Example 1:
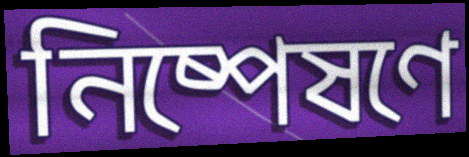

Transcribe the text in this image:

নিষ্পেষণে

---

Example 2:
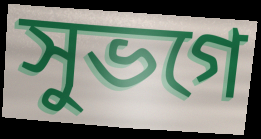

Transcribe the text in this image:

সুভগে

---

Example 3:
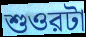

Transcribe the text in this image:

শুওরটা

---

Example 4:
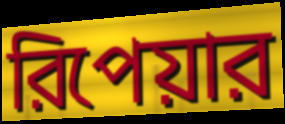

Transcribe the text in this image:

রিপেয়ার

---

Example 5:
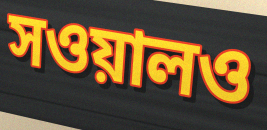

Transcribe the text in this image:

সওয়ালও